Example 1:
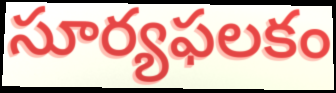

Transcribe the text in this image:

సూర్యఫలకం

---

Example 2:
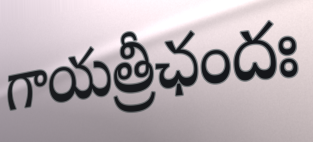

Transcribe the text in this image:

గాయత్రీఛందః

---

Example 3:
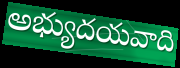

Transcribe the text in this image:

అభ్యుదయవాది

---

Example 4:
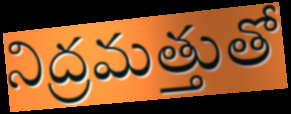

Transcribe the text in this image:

నిద్రమత్తుతో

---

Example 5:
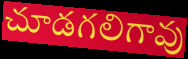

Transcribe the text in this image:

చూడగలిగావు